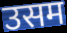
उसम